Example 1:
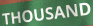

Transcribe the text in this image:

THOUSAND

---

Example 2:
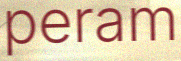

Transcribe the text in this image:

peram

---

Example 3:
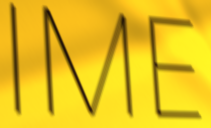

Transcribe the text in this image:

IME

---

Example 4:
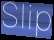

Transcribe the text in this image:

Slip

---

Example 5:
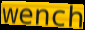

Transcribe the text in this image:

wench